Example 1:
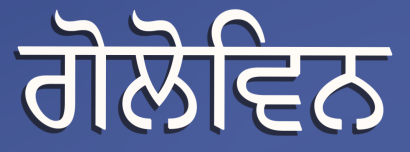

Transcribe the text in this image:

ਗੋਲੋਵਿਨ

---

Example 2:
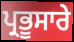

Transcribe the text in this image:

ਪ੍ਰਭੂਸਾਰੇ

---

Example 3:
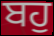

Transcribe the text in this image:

ਬਹੁ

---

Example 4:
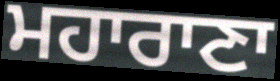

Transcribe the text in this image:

ਮਹਾਰਾਣਾ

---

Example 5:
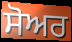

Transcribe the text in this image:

ਸੋਅਰ